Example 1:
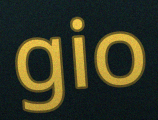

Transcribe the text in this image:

gio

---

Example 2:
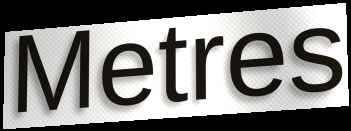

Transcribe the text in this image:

Metres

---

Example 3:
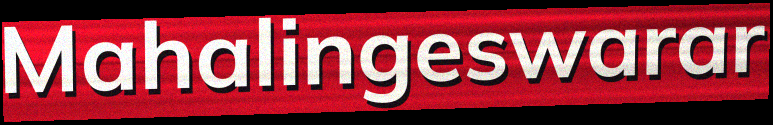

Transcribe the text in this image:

Mahalingeswarar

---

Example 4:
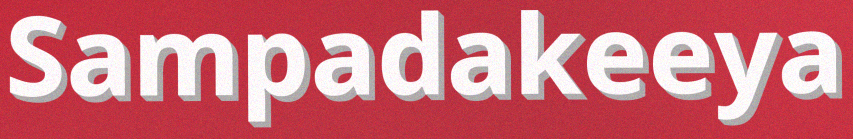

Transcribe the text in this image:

Sampadakeeya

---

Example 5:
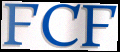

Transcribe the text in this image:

FCF